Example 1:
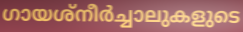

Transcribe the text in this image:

ഗായശ്നീർച്ചാലുകളുടെ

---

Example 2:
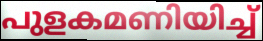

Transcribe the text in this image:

പുളകമണിയിച്ച്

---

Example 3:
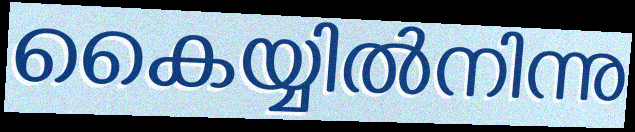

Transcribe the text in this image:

കൈയ്യിൽനിന്നു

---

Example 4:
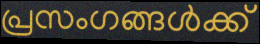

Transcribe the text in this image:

പ്രസംഗങ്ങൾക്ക്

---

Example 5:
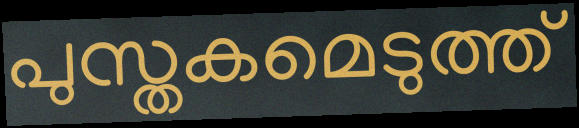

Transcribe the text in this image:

പുസ്തകമെടുത്ത്